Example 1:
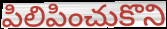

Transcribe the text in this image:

పిలిపించుకొని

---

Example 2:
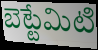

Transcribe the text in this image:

బెట్టేమిటి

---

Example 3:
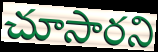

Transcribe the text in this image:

చూసారని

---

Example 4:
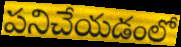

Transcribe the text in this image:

పనిచేయడంలో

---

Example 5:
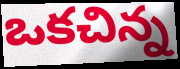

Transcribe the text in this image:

ఒకచిన్న